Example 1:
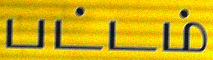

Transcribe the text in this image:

பட்டம்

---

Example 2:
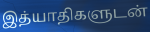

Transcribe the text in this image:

இத்யாதிகளுடன்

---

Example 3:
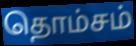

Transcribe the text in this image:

தொம்சம்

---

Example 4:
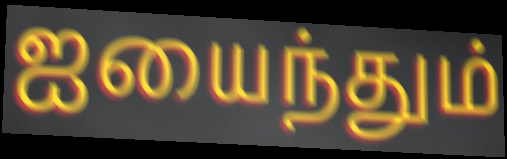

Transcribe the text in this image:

ஐயைந்தும்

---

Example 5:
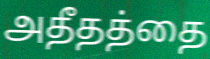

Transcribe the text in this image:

அதீதத்தை